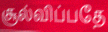
சூல்விப்பதே